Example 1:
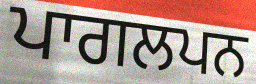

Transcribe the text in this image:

ਪਾਗਲਪਨ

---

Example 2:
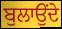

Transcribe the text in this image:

ਬੁਲਾਉਂਦੇ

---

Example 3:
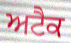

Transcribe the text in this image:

ਅਟੈਕ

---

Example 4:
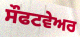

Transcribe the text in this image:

ਸੌਫਟਵੇਅਰ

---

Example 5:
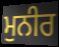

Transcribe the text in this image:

ਮੁਨੀਰ